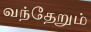
வந்தேறும்